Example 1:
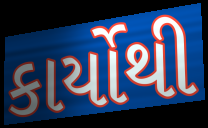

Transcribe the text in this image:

કાર્યોથી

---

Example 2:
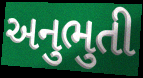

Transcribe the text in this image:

અનુભુતી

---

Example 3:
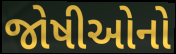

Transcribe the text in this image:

જોષીઓનો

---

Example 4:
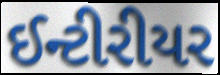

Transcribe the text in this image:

ઈન્ટીરીયર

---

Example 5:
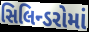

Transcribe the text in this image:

સિલિન્ડરોમાં